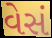
વેસં